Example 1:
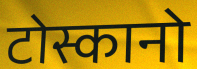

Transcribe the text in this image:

टोस्कानो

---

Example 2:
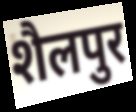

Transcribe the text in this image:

शैलपुर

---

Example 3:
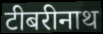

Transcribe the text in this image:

टीबरीनाथ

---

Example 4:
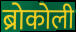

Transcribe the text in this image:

ब्रोकोली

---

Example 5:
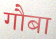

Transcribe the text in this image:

गौबा